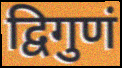
द्विगुणं